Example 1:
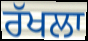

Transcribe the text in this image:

ਰੱਖਲਾ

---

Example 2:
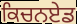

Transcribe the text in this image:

ਕਿਚਨਏਡ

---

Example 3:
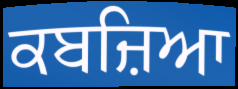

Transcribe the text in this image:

ਕਬਜ਼ਿਆ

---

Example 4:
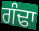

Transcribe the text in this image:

ਗੰਢਾ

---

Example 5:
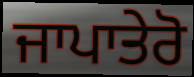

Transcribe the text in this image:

ਜਾਪਾਤੇਰੋ